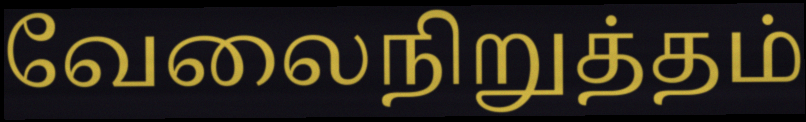
வேலைநிறுத்தம்